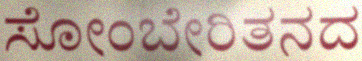
ಸೋಂಬೇರಿತನದ